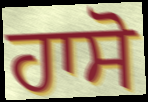
ਹਾਸੋ